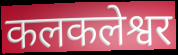
कलकलेश्वर